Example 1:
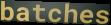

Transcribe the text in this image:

batches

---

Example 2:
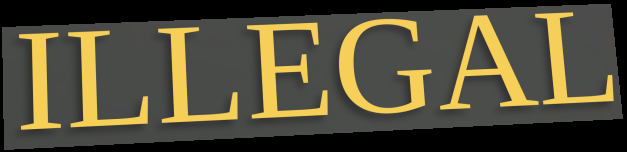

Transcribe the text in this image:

ILLEGAL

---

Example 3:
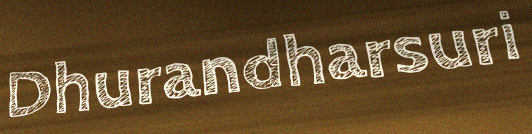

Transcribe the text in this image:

Dhurandharsuri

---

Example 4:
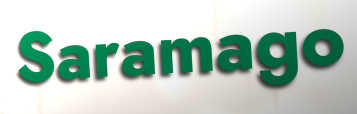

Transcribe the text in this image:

Saramago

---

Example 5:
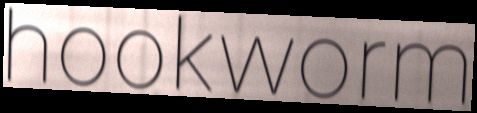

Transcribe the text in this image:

hookworm